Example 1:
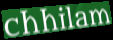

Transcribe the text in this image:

chhilam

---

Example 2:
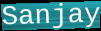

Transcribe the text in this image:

Sanjay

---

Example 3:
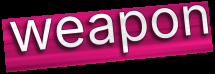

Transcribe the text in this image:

weapon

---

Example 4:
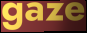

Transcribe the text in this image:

gaze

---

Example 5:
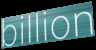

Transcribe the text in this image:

billion